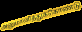
அனுமானித்துக்கொண்டு